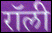
रॉली